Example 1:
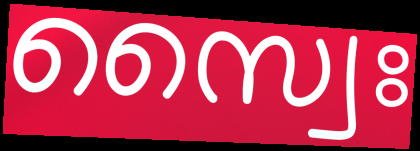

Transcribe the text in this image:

സ്വൈഃ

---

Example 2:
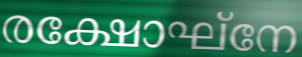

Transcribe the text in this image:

രക്ഷോഘ്നേ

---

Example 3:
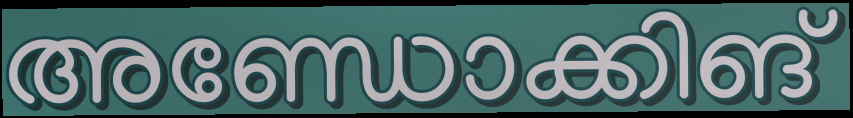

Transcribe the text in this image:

അണ്ഡോക്കിങ്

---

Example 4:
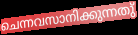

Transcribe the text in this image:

ചെന്നവസാനിക്കുന്നതു്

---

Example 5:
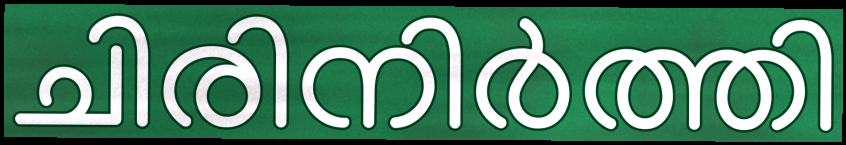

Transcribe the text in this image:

ചിരിനിർത്തി